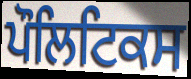
ਪੌਲਿਟਿਕਸ